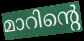
മാറിന്റെ